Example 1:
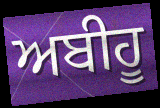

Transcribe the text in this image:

ਅਬੀਹੂ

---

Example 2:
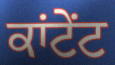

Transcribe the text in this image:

ਕਾਂਟੇਂਟ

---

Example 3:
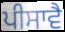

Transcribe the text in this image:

ਪੀਸਾਵੈ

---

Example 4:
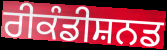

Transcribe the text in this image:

ਰੀਕੰਡੀਸ਼ਨਡ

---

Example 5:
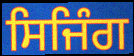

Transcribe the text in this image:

ਸਿਜਿੰਗ